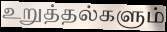
உறுத்தல்களும்